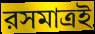
রসমাত্রই